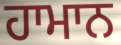
ਹਾਮਾਨ